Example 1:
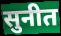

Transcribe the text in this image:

सुनीत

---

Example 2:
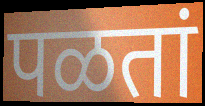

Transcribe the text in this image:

पळतां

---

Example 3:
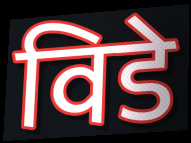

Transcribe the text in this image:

विडे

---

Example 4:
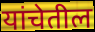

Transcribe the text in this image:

यांचेतील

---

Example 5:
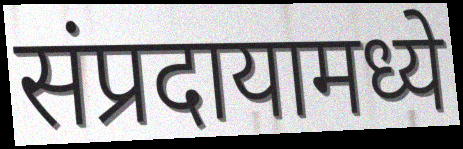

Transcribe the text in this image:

संप्रदायामध्ये